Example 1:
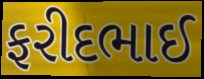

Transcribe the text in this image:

ફરીદભાઈ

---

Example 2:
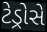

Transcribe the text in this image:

ટેડ્રોસે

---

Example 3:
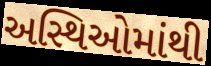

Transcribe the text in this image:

અસ્થિઓમાંથી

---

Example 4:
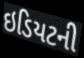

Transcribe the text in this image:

ઇડિયટની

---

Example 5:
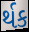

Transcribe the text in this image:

ર્થક